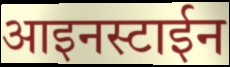
आइनस्टाईन